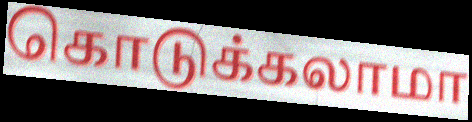
கொடுக்கலாமா